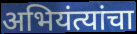
अभियंत्यांचा